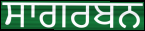
ਸਾਗਰਬਨ